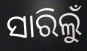
ସାରିଲୁଁ